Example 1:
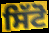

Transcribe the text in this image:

ਸਿੱਟੋ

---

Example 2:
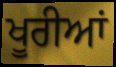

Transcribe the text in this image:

ਖੂਰੀਆਂ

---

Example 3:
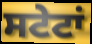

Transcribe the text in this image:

ਸਟੇਟਾਂ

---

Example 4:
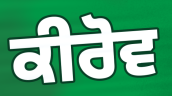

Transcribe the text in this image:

ਕੀਰੋਵ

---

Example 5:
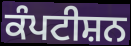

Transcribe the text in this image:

ਕੰਪਟੀਸ਼ਨ